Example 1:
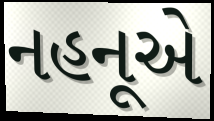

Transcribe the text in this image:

નહનૂએ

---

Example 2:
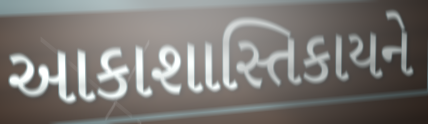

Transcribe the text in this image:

આકાશાસ્તિકાયને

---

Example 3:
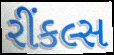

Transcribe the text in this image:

રીંકલ્સ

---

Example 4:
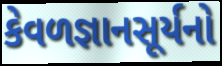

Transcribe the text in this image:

કેવળજ્ઞાનસૂર્યનો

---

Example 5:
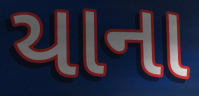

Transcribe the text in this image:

યાના